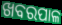
ଖବରପାଳ